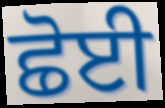
ਛੋਈ